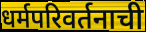
धर्मपरिवर्तनाची